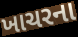
ખાચરના